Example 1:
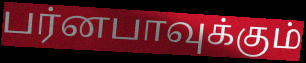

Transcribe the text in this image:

பர்னபாவுக்கும்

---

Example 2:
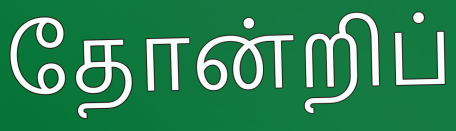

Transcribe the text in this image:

தோன்றிப்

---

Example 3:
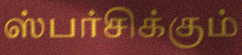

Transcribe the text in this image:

ஸ்பர்சிக்கும்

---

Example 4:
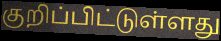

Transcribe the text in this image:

குறிப்பிட்டுள்ளது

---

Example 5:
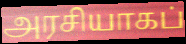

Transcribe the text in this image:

அரசியாகப்